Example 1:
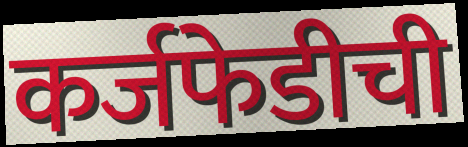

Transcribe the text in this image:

कर्जफेडीची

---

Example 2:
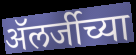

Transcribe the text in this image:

ॲलर्जीच्या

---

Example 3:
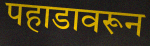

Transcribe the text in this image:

पहाडावरून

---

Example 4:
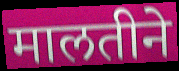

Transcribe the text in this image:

मालतीने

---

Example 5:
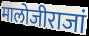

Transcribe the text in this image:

मालोजीराजां